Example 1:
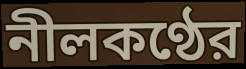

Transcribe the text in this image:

নীলকণ্ঠের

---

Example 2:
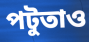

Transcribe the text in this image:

পটুতাও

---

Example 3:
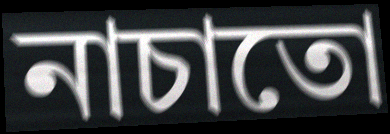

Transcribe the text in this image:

নাচাতো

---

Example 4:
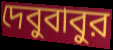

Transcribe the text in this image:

দেবুবাবুর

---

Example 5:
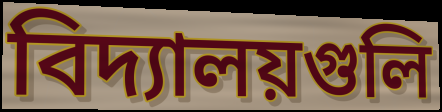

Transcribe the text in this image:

বিদ্যালয়গুলি